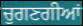
ਚੁਗਣਗੀਆਂ